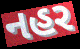
નહર